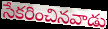
సేకరించినవాడు